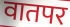
वातपर